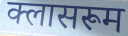
क्लासरूम